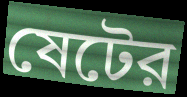
ষেটের